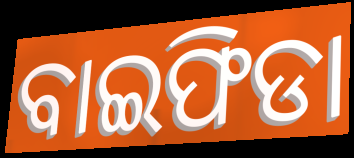
ବାଇଫିଡା